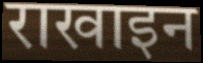
राखाइन